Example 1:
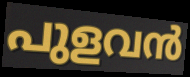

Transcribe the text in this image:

പുളവൻ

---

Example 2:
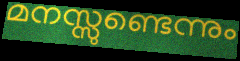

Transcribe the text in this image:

മനസ്സുണ്ടെന്നും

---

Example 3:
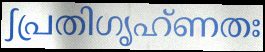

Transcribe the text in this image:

ഽപ്രതിഗൃഹ്ണതഃ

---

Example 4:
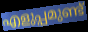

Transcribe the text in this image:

എളുപ്പമുണ്ട്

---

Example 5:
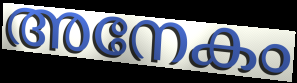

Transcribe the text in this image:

അനേകം